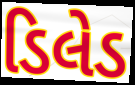
ડિલેડ